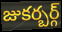
జుకర్బర్గ్